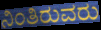
ನಿಂತಿರುವರು